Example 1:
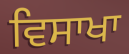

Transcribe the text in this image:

ਵਿਸਾਖਾ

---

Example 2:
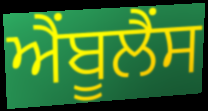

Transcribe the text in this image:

ਐਂਬੂਲੈਂਸ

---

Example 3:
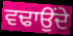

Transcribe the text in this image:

ਵਢਾਉਂਦੇ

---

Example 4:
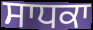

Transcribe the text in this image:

ਸਾਧਕਾ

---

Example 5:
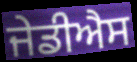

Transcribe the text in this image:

ਜੇਡੀਐਸ